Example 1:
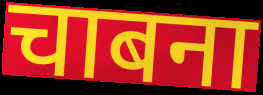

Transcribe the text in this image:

चाबना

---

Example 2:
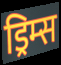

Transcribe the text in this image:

ड्रिम्स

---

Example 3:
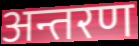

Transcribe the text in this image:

अन्तरण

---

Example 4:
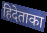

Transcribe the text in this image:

हिदेताका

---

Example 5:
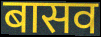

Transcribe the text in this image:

बासव